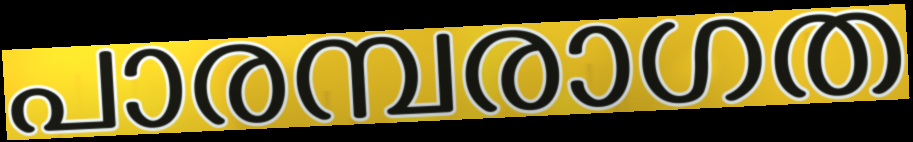
പാരമ്പരാഗത